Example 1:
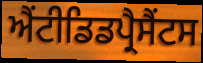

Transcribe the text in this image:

ਐਂਟੀਡਿਡਪ੍ਰੈਸੈਂਟਸ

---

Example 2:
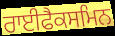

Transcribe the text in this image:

ਰਾਈਫੈਕਸਮਿਨ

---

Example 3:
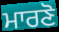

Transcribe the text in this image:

ਮਾਰਣੋ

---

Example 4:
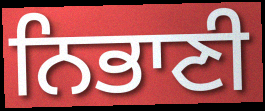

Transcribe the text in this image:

ਨਿਭਾਣੀ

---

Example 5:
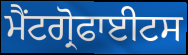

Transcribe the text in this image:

ਮੈਂਟਗ੍ਰੋਫਾਈਟਸ